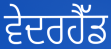
ਵੇਦਰਹੈੱਡ